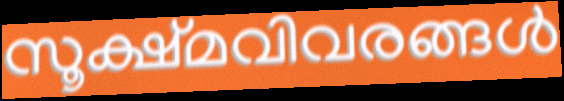
സൂക്ഷ്മവിവരങ്ങൾ